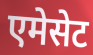
एमेसेट